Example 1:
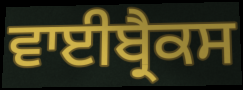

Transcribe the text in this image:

ਵਾਈਬ੍ਰੈਕਸ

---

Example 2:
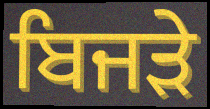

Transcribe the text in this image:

ਬਿਜੜੇ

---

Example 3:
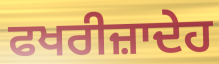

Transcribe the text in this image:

ਫਖਰੀਜ਼ਾਦੇਹ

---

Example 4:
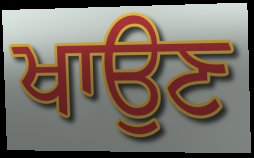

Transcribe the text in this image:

ਖਾਉਣ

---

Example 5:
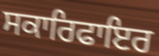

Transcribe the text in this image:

ਸਕਾਰਿਫਾਇਰ